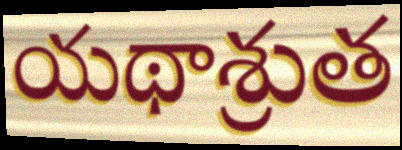
యథాశ్రుత